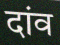
दांव